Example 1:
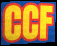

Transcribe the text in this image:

CCF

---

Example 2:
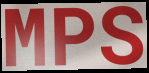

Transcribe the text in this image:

MPS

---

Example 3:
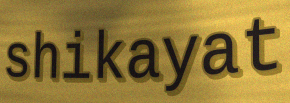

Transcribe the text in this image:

shikayat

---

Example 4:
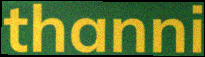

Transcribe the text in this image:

thanni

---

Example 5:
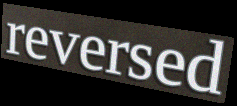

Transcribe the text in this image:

reversed